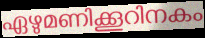
ഏഴുമണിക്കൂറിനകം